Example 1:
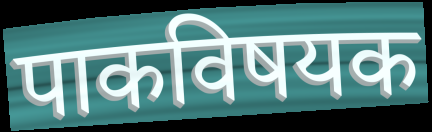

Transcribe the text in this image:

पाकविषयक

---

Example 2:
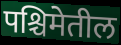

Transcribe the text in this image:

पश्चिमेतील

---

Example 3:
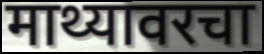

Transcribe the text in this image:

माथ्यावरचा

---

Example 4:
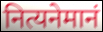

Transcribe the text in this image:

नित्यनेमानं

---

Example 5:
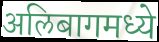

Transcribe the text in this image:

अलिबागमध्ये